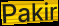
Pakir